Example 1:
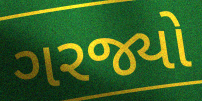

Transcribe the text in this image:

ગરજ્યો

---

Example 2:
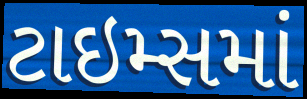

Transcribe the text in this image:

ટાઇમ્સમાં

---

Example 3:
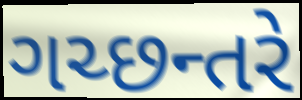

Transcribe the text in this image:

ગચ્છન્તરે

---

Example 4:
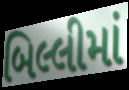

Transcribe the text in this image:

બિલ્લીમાં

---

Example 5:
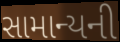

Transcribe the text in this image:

સામાન્યની